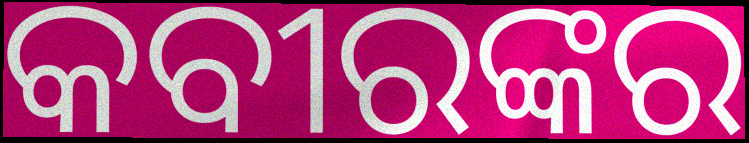
କବୀରଙ୍କର